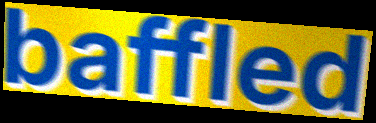
baffled